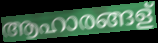
ആഹാരങ്ങള്